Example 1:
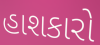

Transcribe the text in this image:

હાશકારો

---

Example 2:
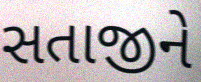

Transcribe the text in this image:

સતાજીને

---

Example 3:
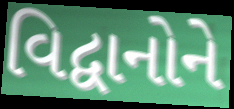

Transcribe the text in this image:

વિદ્વાનોને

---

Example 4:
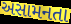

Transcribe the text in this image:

અસામનતા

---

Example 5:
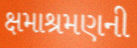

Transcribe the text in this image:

ક્ષમાશ્રમણની